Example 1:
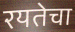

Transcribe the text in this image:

रयतेचा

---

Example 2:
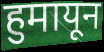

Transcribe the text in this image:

हुमायून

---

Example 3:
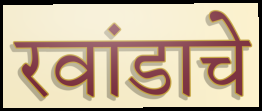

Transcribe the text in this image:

रवांडाचे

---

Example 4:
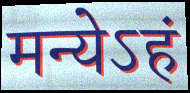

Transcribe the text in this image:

मन्येऽहं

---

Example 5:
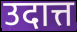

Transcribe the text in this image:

उदात्त